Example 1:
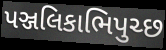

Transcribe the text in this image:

પઞ્જલિકાભિપુચ્છ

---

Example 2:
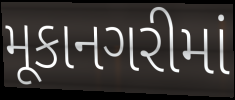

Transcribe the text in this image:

મૂકાનગરીમાં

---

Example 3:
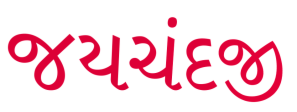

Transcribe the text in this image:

જયચંદજી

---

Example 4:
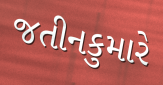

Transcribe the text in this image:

જતીનકુમારે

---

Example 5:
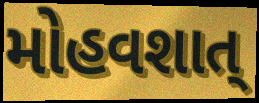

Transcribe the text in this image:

મોહવશાત્